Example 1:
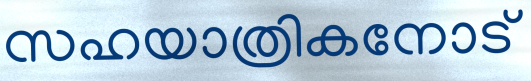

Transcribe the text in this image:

സഹയാത്രികനോട്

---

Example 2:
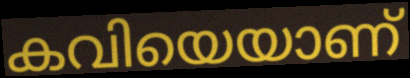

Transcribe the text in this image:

കവിയെയാണ്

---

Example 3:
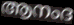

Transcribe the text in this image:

ആനംദ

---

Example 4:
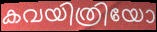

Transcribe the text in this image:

കവയിത്രിയോ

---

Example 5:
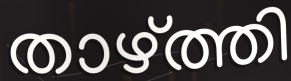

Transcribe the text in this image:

താഴ്ത്തി